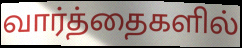
வார்த்தைகளில்